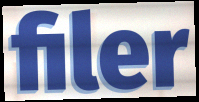
filer